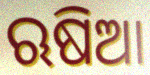
ଋଷିଆ